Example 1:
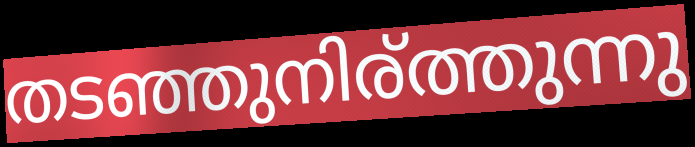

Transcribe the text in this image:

തടഞ്ഞുനിര്ത്തുന്നു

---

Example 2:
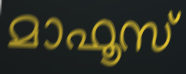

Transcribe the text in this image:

മാഫൂസ്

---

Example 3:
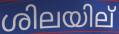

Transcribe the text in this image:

ശിലയില്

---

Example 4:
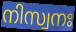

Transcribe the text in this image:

നിസ്വനഃ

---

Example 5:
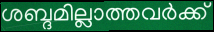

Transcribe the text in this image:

ശബ്ദമില്ലാത്തവർക്ക്